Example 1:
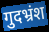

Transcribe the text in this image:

गुदभ्रंश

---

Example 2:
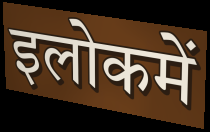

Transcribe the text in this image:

इलोकमें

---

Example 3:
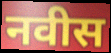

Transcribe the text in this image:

नवीस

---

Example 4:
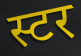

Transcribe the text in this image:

स्टर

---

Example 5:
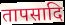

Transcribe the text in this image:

तापसादि